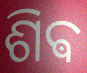
ଶିଵ